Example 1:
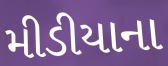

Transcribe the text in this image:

મીડીયાના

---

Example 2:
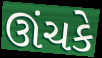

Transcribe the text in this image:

ઊંચકે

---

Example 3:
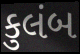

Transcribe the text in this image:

કુલંબ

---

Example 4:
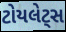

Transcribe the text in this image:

ટોયલેટ્સ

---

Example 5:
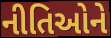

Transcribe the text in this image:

નીતિઓને